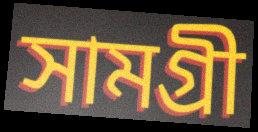
সামগ্রী